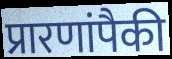
प्रारणांपैकी